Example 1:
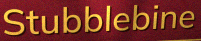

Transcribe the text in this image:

Stubblebine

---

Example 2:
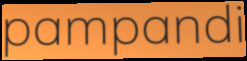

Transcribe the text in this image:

pampandi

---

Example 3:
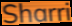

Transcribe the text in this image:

Sharri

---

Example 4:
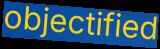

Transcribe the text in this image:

objectified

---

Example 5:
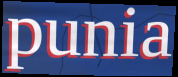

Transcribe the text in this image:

punia